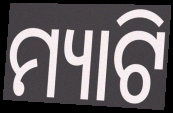
ମ୍ୟାଟି